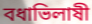
বধাভিলাষী